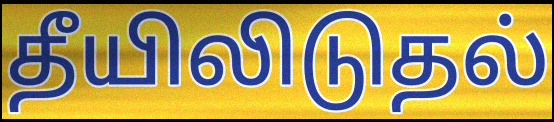
தீயிலிடுதல்